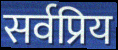
सर्वप्रिय